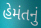
હેમંતનું